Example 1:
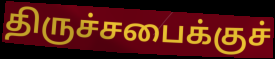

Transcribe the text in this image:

திருச்சபைக்குச்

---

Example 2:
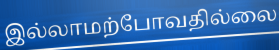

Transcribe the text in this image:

இல்லாமற்போவதில்லை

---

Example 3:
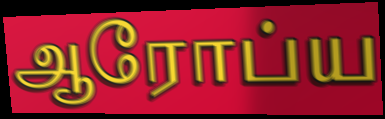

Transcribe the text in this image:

ஆரோப்ய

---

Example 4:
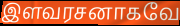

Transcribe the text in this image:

இளவரசனாகவே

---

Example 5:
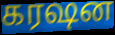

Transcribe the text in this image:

கரஷன